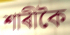
শাৰীকৈ